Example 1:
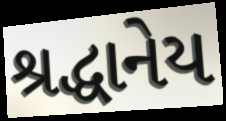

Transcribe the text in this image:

શ્રદ્ધાનેય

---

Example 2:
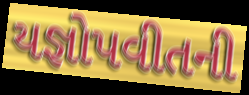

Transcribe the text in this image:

યજ્ઞોપવીતની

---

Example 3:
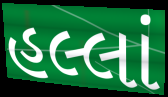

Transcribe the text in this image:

હલ્લાં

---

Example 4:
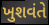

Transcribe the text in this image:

ખુશવંતે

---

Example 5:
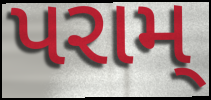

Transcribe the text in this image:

પરામ્